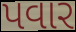
પવાર